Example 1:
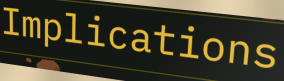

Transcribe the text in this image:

Implications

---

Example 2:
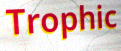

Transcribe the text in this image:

Trophic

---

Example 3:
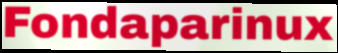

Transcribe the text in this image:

Fondaparinux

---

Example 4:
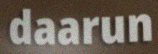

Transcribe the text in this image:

daarun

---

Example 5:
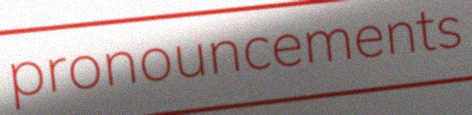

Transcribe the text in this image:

pronouncements